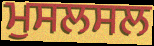
ਮੁਸਲਸਲ